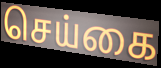
செய்கை